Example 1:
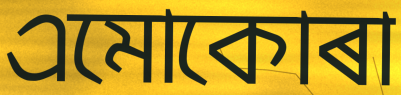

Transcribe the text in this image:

এমোকোৰা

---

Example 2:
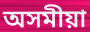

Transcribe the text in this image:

অসমীয়া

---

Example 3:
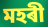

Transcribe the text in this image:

মহৰী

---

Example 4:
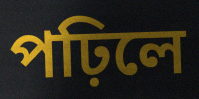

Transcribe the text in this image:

পঢ়িলে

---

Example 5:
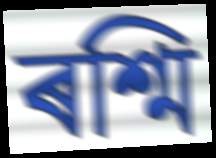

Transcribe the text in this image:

ৰশ্মি